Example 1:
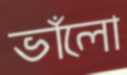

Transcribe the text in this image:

ভাঁলো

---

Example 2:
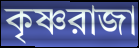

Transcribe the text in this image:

কৃষ্ণরাজা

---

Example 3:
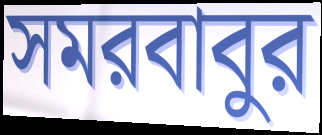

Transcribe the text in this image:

সমরবাবুর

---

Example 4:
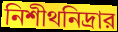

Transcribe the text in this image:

নিশীথনিদ্রার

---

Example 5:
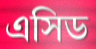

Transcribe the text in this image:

এসিড